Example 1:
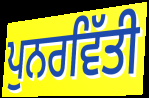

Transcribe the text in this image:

ਪੁਨਰਵਿੱਤੀ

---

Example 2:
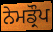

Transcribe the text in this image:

ਨੇਮਡ੍ਰੌਪ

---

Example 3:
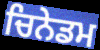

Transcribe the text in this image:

ਚਿਨੇਡਮ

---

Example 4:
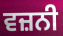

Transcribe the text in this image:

ਵਜ਼ਨੀ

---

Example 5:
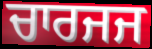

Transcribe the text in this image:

ਚਾਰਜਜ